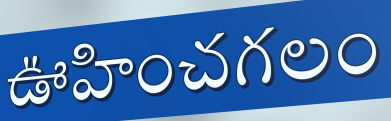
ఊహించగలం